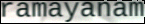
ramayanam